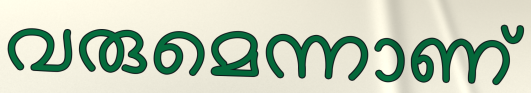
വരുമെന്നാണ്